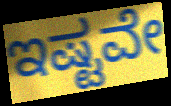
ಇಷ್ಟವೇ